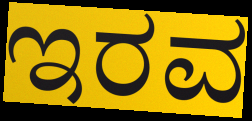
ಇರವ